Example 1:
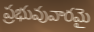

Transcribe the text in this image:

ప్రభువువారమై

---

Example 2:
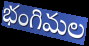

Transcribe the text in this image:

భంగిమల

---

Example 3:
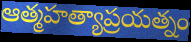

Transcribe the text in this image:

ఆత్మహత్యాప్రయత్నం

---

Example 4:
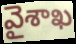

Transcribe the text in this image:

వైశాఖ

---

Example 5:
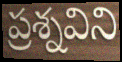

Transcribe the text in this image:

ప్రశ్నవిని